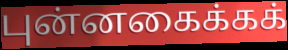
புன்னகைக்கக்